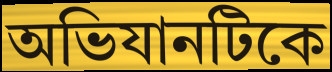
অভিযানটিকে